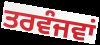
ਤਰਵੰਜਵਾਂ